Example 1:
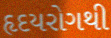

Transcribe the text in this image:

હૃદયરોગથી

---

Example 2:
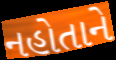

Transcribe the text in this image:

નહોતાને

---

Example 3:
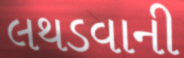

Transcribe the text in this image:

લથડવાની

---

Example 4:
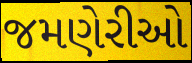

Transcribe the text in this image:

જમણેરીઓ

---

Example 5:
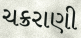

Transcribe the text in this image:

ચક્રરાણી